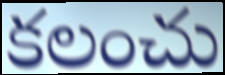
కలంచు